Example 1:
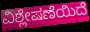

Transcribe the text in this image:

ವಿಶ್ಲೇಷಣೆಯಿದೆ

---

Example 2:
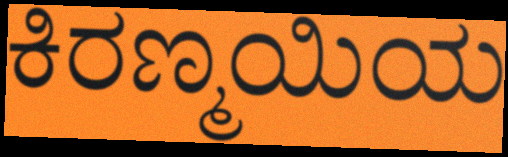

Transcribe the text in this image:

ಕಿರಣ್ಮಯಿಯ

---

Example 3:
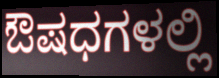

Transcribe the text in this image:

ಔಷಧಗಳಲ್ಲಿ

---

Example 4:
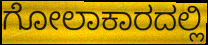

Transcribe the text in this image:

ಗೋಲಾಕಾರದಲ್ಲಿ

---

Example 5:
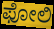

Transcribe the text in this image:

ಫೋಲಿ